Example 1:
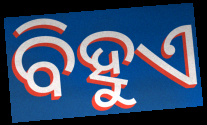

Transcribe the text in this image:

ବିହୁଏ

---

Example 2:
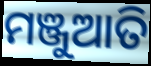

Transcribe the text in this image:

ମଞ୍ଜୁଆତି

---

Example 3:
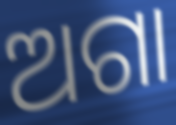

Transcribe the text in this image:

ଅଗା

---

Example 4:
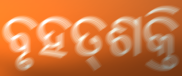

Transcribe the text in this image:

ବୃହତ୍‌ଶକ୍ତି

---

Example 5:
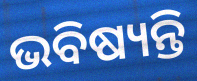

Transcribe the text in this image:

ଭବିଷ୍ୟନ୍ତି